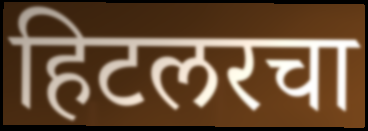
हिटलरचा